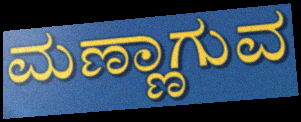
ಮಣ್ಣಾಗುವ